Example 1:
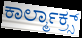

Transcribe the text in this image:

ಕಾರ್ಲ್ಮಾಕ್ರ್ಸ್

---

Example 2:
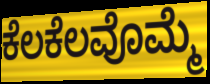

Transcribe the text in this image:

ಕೆಲಕೆಲವೊಮ್ಮೆ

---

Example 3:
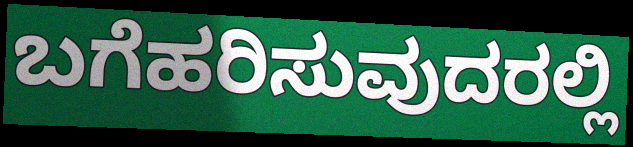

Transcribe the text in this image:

ಬಗೆಹರಿಸುವುದರಲ್ಲಿ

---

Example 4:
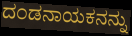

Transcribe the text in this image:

ದಂಡನಾಯಕನನ್ನು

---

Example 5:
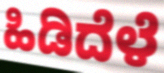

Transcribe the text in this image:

ಹಿಡಿದೆಳೆ